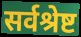
सर्वश्रेष्ट